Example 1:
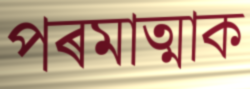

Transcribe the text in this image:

পৰমাত্মাক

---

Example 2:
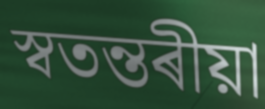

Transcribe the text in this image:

স্বতন্তৰীয়া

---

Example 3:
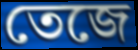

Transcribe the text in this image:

তেজে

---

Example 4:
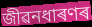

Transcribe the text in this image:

জীৱনধাৰণৰ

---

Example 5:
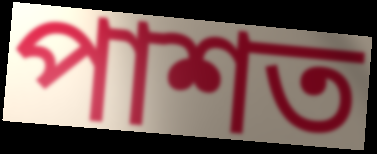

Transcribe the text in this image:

পাশত